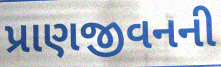
પ્રાણજીવનની